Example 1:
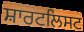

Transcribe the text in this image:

ਸ਼ਾਰਟਲਿਸਟ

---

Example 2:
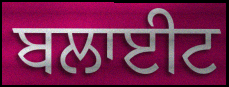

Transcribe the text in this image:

ਬਲਾਈਟ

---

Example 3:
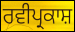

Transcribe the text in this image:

ਰਵੀਪ੍ਰਕਾਸ਼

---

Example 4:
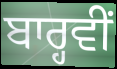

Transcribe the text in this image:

ਬਾਰ੍ਹਵੀਂ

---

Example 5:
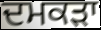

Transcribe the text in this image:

ਦਮਕੜਾ